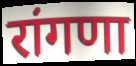
रांगणा